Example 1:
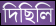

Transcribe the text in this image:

দিছিলি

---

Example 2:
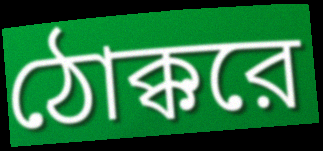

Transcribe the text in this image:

ঠোক্করে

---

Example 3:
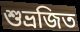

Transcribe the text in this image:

শুভ্রজিত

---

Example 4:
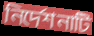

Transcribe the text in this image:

নির্দেশনাটি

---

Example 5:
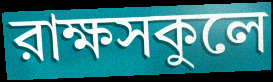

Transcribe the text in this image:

রাক্ষসকুলে